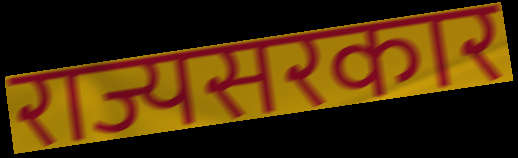
राज्यसरकार